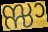
സ്സാ